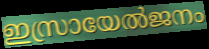
ഇസ്രായേൽജനം